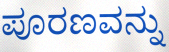
ಪೂರಣವನ್ನು